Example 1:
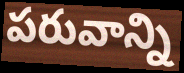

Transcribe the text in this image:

పరువాన్ని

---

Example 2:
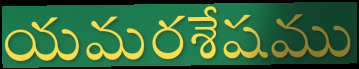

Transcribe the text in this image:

యమరశేషము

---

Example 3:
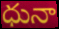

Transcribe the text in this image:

ధునా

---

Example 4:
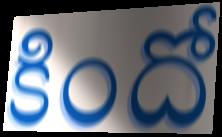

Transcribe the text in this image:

కిందో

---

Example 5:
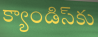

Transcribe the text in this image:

క్యాండిస్‌కు